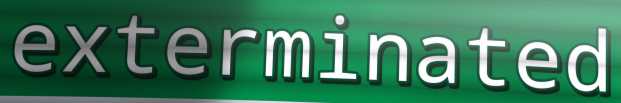
exterminated